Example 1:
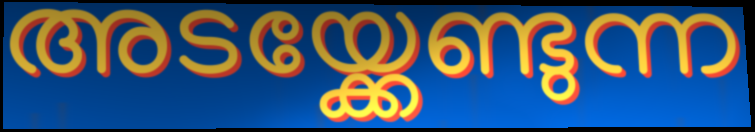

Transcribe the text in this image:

അടയ്ക്കേണ്ടുന്ന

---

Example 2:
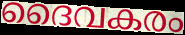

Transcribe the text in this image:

ദൈവകരം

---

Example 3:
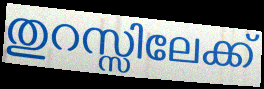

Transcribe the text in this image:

തുറസ്സിലേക്ക്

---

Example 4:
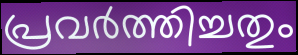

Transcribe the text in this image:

പ്രവർത്തിച്ചതും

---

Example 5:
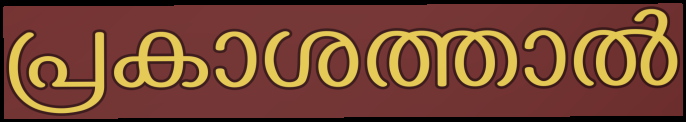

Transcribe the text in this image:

പ്രകാശത്താൽ